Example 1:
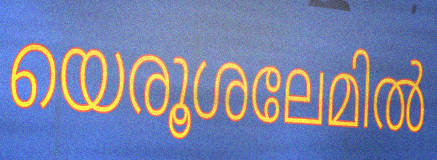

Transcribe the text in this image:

യെരൂശലേമിൽ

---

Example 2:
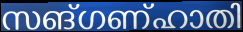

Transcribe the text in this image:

സങ്ഗണ്ഹാതി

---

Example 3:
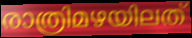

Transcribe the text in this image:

രാത്രിമഴയിലത്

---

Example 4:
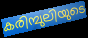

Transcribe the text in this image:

കരിമ്പുലിയുടെ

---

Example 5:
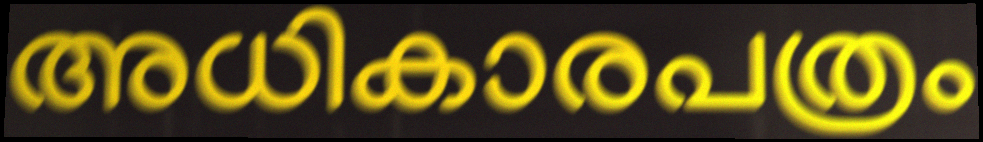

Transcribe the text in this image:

അധികാരപത്രം